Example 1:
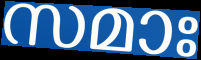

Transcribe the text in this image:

സമാഃ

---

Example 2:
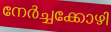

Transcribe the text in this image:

നേർച്ചക്കോഴി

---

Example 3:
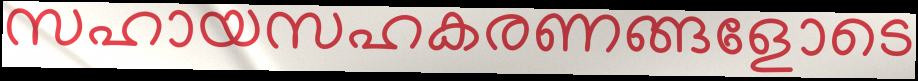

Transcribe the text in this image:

സഹായസഹകരണങ്ങളോടെ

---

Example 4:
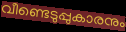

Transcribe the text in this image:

വീണ്ടെടുപ്പുകാരനും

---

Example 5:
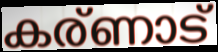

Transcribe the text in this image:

കര്ണാട്